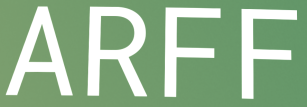
ARFF